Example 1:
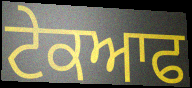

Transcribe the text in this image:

ਟੇਕਆਫ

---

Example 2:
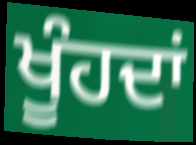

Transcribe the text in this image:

ਖੂੰਹਦਾਂ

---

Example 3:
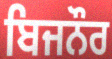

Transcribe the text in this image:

ਬਿਜਨੌਰ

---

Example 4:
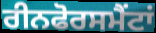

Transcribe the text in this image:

ਰੀਨਫੋਰਸਮੈਂਟਾਂ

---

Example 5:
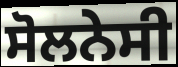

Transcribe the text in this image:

ਸੋਲਨੇਸੀ